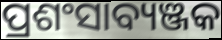
ପ୍ରଶଂସାବ୍ୟଞ୍ଜକ